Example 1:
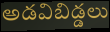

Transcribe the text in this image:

అడవిబిడ్డలు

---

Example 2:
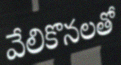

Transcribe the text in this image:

వేలికొనలతో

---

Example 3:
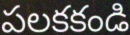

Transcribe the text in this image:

పలకకండి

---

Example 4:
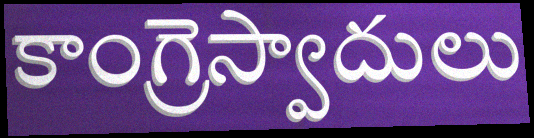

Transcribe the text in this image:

కాంగ్రెస్వాదులు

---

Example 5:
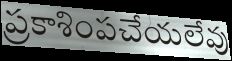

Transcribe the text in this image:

ప్రకాశింపచేయలేవు